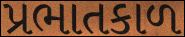
પ્રભાતકાળ